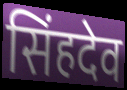
सिंहदेव